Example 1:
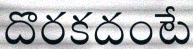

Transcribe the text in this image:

దొరకదంటే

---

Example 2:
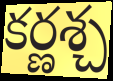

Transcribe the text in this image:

కర్ణశ్చ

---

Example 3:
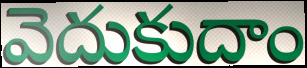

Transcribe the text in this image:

వెదుకుదాం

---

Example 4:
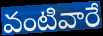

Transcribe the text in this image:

వంటివారే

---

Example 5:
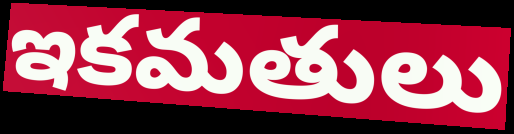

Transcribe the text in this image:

ఇకమతులు